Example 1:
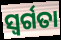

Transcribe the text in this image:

ସ୍ୱର୍ଗତା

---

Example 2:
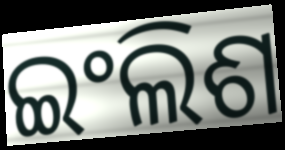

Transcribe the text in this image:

ଇଂଲିଶ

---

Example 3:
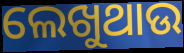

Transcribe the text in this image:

ଲେଖୁଥାଉ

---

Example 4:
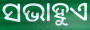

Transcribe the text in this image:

ସଭାହୁଏ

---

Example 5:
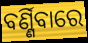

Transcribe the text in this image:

ବର୍ଣ୍ଣିବାରେ